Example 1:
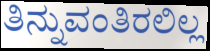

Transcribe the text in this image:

ತಿನ್ನುವಂತಿರಲಿಲ್ಲ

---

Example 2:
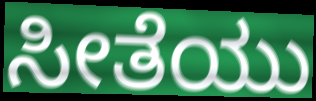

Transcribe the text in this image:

ಸೀತೆಯು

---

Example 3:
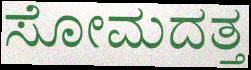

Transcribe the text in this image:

ಸೋಮದತ್ತ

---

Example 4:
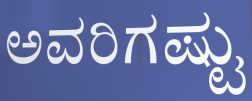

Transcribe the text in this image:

ಅವರಿಗಷ್ಟು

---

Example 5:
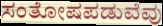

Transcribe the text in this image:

ಸಂತೋಷಪಡುವೆವು